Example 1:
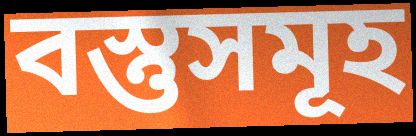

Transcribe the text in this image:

বস্তুসমূহ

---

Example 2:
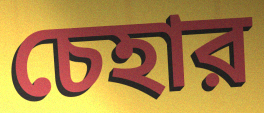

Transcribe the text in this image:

চেহার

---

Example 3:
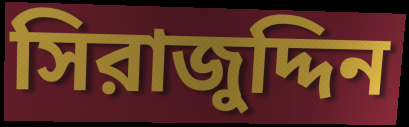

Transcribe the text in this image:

সিরাজুদ্দিন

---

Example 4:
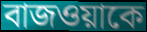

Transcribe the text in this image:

বাজওয়াকে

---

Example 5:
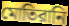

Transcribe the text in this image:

মোতিরানি